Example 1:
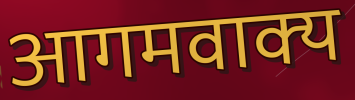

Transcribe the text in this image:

आगमवाक्य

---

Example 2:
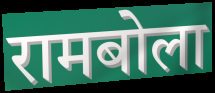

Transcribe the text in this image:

रामबोला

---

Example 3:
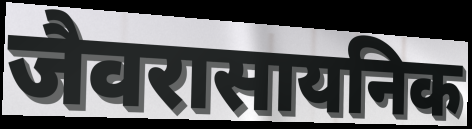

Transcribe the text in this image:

जैवरासायनिक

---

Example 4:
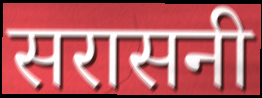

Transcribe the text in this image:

सरासनी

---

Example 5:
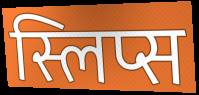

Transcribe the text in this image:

स्लिप्स